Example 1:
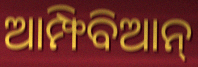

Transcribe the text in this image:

ଆମ୍ଫିବିଆନ୍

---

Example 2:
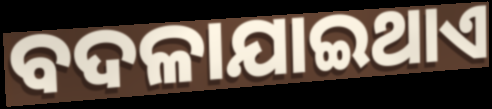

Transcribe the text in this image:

ବଦଳାଯାଇଥାଏ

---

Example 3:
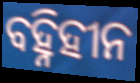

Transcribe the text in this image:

ବହ୍ନିହୀନ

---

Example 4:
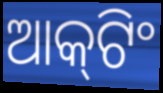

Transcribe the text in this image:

ଆକ୍‌ଟିଂ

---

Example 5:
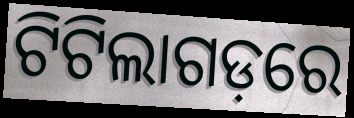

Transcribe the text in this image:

ଟିଟିଲାଗଡ଼ରେ